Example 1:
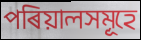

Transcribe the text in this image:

পৰিয়ালসমূহে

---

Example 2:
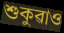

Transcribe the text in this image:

শুকুৱাও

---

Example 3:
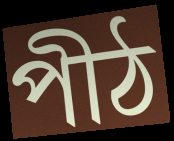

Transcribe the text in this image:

পীঠ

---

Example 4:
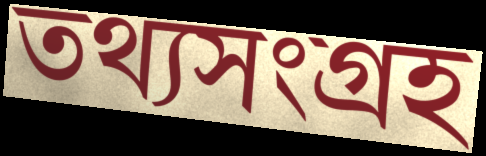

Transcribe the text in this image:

তথ্যসংগ্ৰহ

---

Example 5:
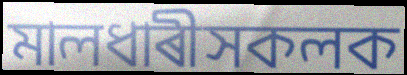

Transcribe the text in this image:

মালধাৰীসকলক